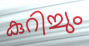
കുറിച്ചും